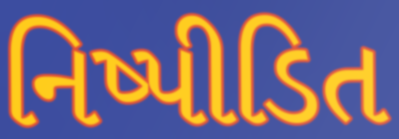
નિષ્પીડિત